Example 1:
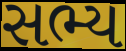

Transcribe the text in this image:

સભ્ય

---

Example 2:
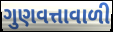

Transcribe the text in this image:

ગુણવત્તાવાળી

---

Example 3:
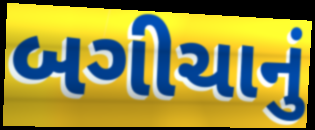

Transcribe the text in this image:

બગીચાનું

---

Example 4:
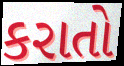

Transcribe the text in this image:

કરાતો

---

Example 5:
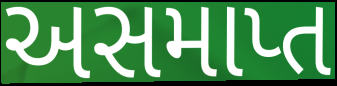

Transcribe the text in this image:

અસમાપ્ત